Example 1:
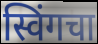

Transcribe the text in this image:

स्विंगचा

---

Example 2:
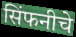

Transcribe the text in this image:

सिंफनीचे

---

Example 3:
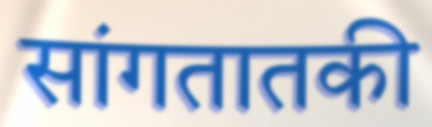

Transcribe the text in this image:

सांगतातकी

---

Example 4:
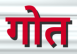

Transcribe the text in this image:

गोत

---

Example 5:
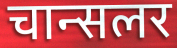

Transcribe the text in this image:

चान्सलर